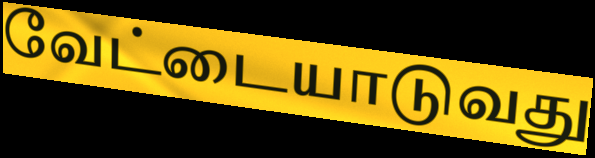
வேட்டையாடுவது